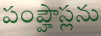
పంప్హౌస్లను